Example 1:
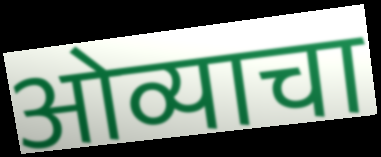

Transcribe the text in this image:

ओव्याचा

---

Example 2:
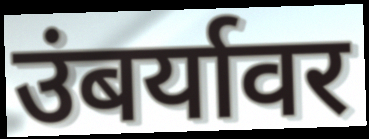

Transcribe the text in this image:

उंबर्यावर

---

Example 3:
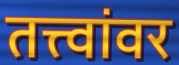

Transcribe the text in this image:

तत्त्वांवर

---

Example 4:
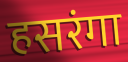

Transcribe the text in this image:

हसरंगा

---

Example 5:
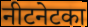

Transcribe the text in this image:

नीटनेटका